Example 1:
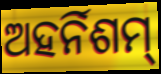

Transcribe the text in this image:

ଅହର୍ନିଶମ୍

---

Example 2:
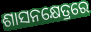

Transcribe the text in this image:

ଶାସନକ୍ଷେତ୍ରରେ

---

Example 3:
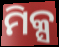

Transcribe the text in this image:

ମିକ୍ସ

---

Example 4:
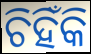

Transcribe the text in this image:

ଚିହିଁକି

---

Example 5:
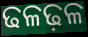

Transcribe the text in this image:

ଢଳଢ଼ଳ